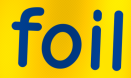
foil